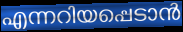
എന്നറിയപ്പെടാൻ